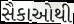
સૈકાઓથી